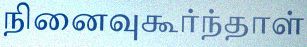
நினைவுகூர்ந்தாள்